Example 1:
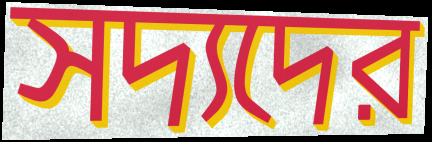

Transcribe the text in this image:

সদ্যদের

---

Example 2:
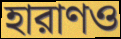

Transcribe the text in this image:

হারাণও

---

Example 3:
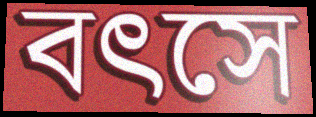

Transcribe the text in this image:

বৎসে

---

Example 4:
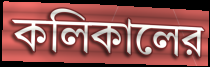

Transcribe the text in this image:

কলিকালের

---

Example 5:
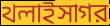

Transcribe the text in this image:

থলাইসাগর